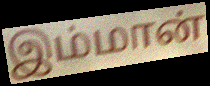
இம்மான்